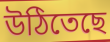
উঠিতেছে